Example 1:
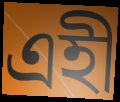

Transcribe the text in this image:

এহী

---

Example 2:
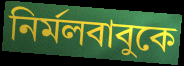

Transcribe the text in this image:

নির্মলবাবুকে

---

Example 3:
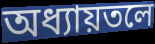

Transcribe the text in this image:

অধ্যায়তলে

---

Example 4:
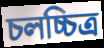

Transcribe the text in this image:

চলচ্চিত্র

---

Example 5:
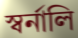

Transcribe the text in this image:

স্বর্নালি